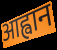
आह्वान